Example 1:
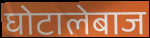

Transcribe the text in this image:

घोटालेबाज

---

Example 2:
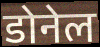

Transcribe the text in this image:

डोनेल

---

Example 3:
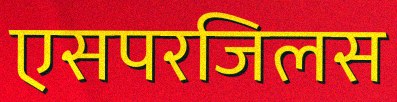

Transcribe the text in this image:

एसपरजिलस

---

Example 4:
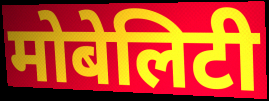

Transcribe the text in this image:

मोबेलिटी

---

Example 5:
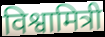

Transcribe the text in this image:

विश्वामित्री